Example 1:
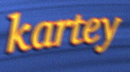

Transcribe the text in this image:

kartey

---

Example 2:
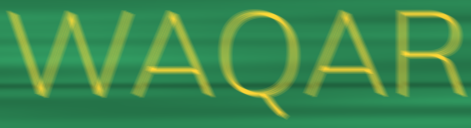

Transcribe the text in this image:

WAQAR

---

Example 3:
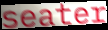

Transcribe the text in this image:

seater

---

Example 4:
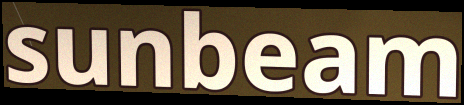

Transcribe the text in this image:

sunbeam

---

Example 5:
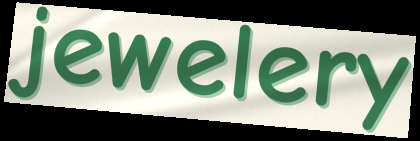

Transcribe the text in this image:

jewelery